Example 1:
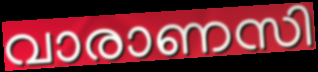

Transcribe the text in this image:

വാരാണസി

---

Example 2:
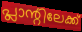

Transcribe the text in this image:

പ്ലാന്റിലേക്ക്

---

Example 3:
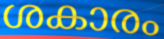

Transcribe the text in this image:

ശകാരം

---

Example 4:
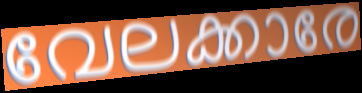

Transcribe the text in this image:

വേലക്കാരേ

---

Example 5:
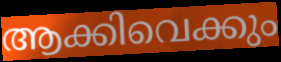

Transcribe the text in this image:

ആക്കിവെക്കും